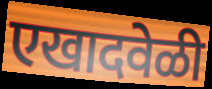
एखादवेळी